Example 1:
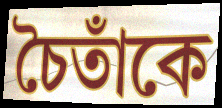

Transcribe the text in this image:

চৈতাঁকে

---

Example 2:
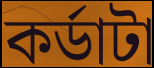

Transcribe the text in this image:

কর্ডাটা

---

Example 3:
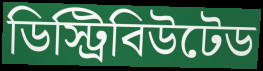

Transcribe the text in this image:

ডিস্ট্রিবিউটেড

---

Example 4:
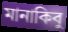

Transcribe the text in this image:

মানাকিবু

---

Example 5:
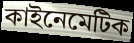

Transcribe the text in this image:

কাইনেমেটিক